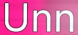
Unn